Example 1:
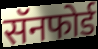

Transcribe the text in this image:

सॅनफोर्ड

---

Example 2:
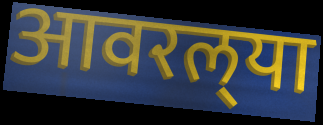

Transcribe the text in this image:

आवरल्या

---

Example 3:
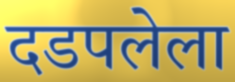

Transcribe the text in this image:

दडपलेला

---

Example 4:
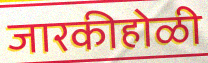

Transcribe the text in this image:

जारकीहोळी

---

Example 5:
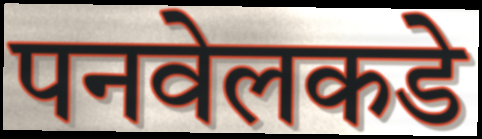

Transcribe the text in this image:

पनवेलकडे